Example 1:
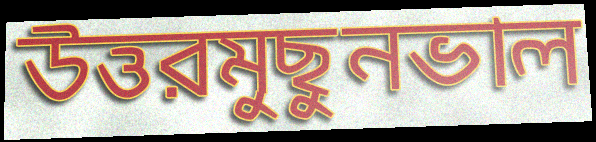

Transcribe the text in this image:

উত্তরমুছুনভাল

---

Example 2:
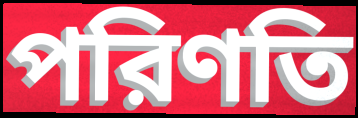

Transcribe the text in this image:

পরিণতি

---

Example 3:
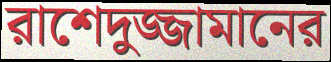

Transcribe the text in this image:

রাশেদুজ্জামানের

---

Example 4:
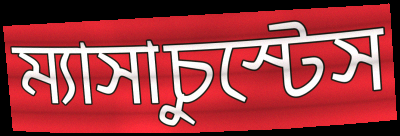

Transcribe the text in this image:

ম্যাসাচুস্টেস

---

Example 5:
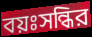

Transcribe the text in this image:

বয়ঃসন্ধির